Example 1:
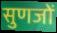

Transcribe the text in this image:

सुणजों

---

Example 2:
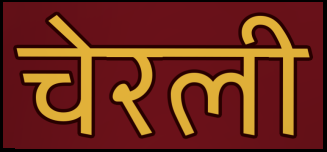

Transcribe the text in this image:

चेरली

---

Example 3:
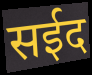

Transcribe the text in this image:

सईद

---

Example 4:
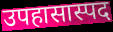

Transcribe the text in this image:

उपहासास्पद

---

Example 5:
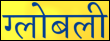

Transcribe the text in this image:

ग्लोबली